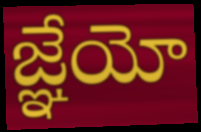
జ్ఞేయో